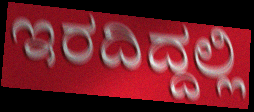
ಇರದಿದ್ದಲ್ಲಿ